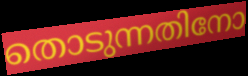
തൊടുന്നതിനോ